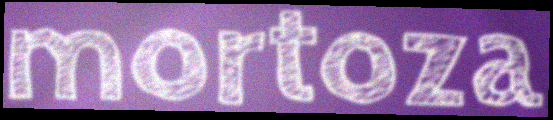
mortoza